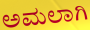
ಅಮಲಾಗಿ